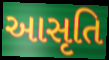
આસૃતિ